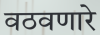
वठवणारे